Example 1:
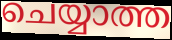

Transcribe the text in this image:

ചെയ്യാത്ത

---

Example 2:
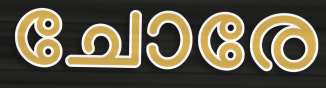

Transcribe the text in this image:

ചോരേ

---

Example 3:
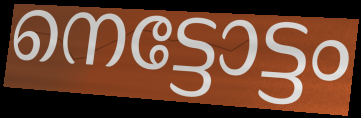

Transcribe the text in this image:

നെട്ടോട്ടം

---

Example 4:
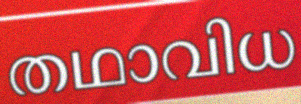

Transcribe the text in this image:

തഥാവിധ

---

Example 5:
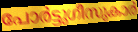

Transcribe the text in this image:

പോർട്ടുഗീസുകാർ